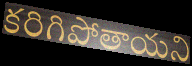
కరిగిపోతాయని